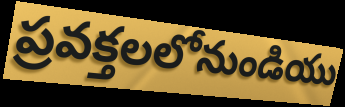
ప్రవక్తలలోనుండియు